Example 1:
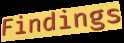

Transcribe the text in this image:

Findings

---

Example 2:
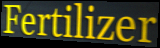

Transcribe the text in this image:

Fertilizer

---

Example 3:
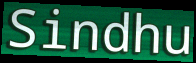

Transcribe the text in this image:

Sindhu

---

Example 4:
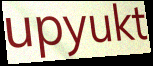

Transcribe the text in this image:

upyukt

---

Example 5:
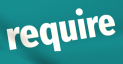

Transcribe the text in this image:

require